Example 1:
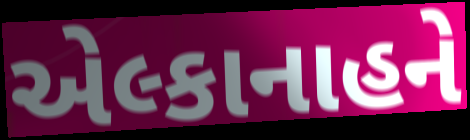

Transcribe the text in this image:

એલ્કાનાહને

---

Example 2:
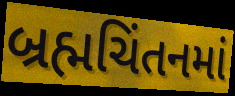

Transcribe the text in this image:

બ્રહ્મચિંતનમાં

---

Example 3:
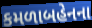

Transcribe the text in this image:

કમળાબહેનના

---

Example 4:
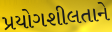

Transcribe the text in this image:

પ્રયોગશીલતાને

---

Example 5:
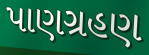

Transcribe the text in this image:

પાણગ્રહણ